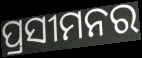
ପ୍ରସୀମନର